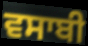
ਵਸਾਬੀ